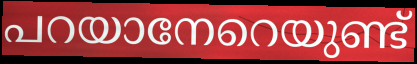
പറയാനേറെയുണ്ട്